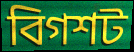
বিগশট